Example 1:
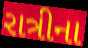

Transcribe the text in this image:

રાત્રીના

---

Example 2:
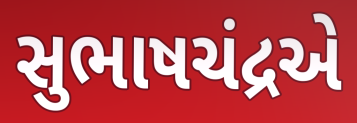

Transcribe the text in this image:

સુભાષચંદ્રએ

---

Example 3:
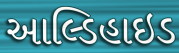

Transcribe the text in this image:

આલ્ડિહાઇડ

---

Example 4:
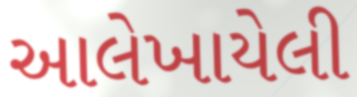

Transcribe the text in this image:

આલેખાયેલી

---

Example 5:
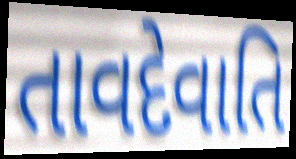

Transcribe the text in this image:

તાવદેવાતિ